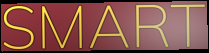
SMART